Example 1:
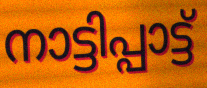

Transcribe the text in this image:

നാട്ടിപ്പാട്ട്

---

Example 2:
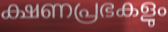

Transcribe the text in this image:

ക്ഷണപ്രഭകളും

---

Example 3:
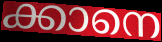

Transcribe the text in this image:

ക്കാനെ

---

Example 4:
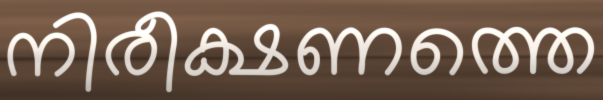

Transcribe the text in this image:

നിരീക്ഷണത്തെ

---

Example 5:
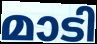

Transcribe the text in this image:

മാടി